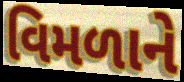
વિમળાને